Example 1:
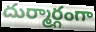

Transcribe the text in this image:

దుర్మార్గంగా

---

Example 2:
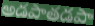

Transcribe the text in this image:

అడపాతడపా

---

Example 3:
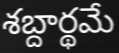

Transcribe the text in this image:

శబ్దార్థమే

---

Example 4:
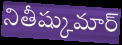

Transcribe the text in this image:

నితీష్కుమార్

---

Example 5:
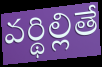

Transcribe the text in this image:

వర్థిల్లితే